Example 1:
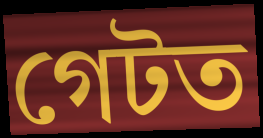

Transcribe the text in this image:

গেটত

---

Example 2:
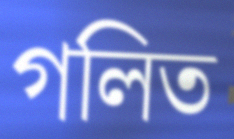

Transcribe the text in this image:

গলিত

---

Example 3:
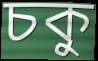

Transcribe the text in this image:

চকু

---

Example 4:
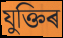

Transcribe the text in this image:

যুক্তিৰ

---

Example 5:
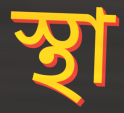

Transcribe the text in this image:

স্থা